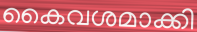
കൈവശമാക്കി